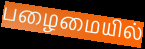
பழைமையில்